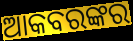
ଆକବରଙ୍କର